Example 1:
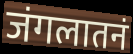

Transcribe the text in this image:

जंगलातनं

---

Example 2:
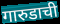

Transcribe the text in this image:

गारुडाची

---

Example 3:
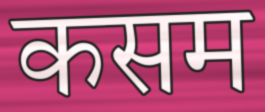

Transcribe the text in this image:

कसम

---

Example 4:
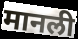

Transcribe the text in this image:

मानली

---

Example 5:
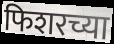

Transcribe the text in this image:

फिशरच्या